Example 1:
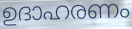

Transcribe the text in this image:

ഉദാഹരണം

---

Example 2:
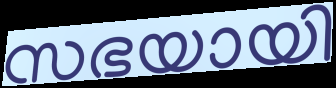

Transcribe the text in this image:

സഭയായി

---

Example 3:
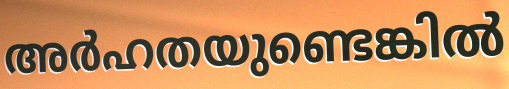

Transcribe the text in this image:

അർഹതയുണ്ടെങ്കിൽ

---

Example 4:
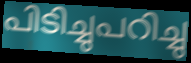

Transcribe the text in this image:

പിടിച്ചുപറിച്ചു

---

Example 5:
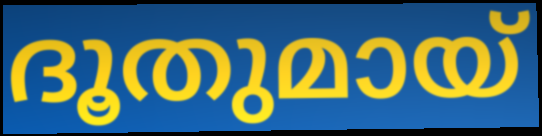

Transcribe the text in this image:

ദൂതുമായ്